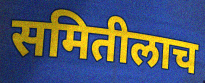
समितीलाच